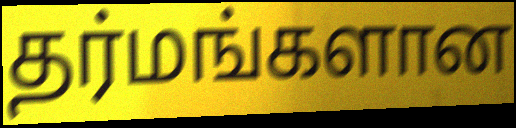
தர்மங்களான